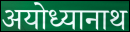
अयोध्यानाथ